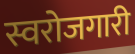
स्वरोजगारी